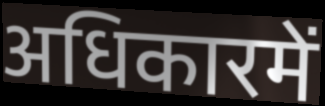
अधिकारमें